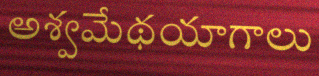
అశ్వమేథయాగాలు